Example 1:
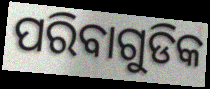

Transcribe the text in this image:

ପରିବାଗୁଡିକ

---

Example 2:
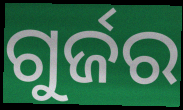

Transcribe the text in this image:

ଗୁର୍ଜର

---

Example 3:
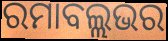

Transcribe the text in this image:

ରମାବଲ୍ଲଭର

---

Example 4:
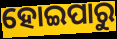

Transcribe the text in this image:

ହୋଇପାରୁ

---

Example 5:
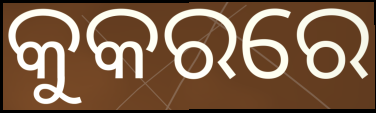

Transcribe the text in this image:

କୁକରରେ